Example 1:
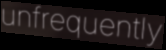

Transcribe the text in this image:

unfrequently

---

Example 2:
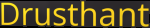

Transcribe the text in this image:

Drusthant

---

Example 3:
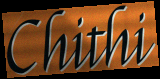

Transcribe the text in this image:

Chithi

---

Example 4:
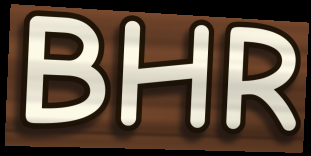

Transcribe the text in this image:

BHR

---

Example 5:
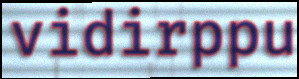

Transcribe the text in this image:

vidirppu